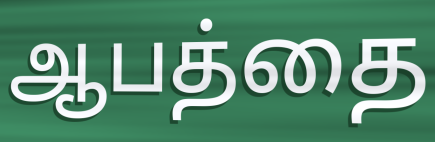
ஆபத்தை